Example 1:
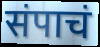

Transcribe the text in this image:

संपाचं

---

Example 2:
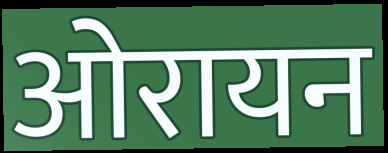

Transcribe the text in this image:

ओरायन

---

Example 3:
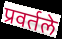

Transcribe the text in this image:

प्रवर्तले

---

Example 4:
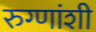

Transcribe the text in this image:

रुग्णांशी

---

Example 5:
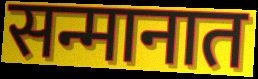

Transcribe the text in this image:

सन्मानात